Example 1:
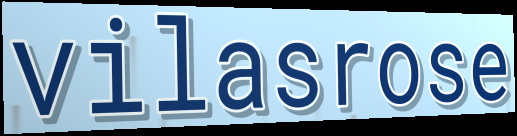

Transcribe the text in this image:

vilasrose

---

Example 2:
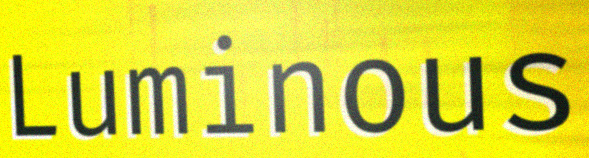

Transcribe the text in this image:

Luminous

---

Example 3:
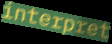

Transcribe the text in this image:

interpret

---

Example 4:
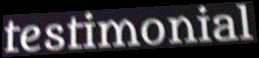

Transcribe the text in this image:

testimonial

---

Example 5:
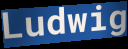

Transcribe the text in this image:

Ludwig